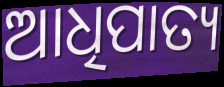
ଆଧିପାତ୍ୟ